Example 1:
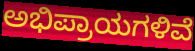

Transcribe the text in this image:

ಅಭಿಪ್ರಾಯಗಳಿವೆ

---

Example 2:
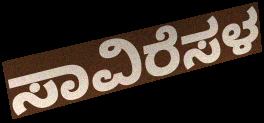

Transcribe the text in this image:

ಸಾವಿರೆಸಳ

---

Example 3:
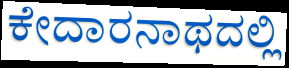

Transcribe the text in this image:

ಕೇದಾರನಾಥದಲ್ಲಿ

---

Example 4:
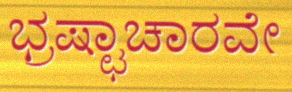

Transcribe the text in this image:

ಭ್ರಷ್ಟಾಚಾರವೇ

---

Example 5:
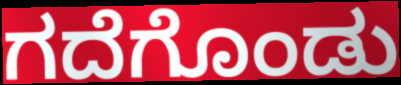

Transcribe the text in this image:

ಗದೆಗೊಂಡು